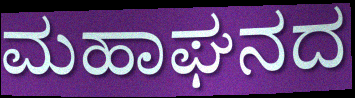
ಮಹಾಘನದ